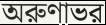
অরুণাভর